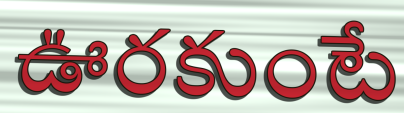
ఊరకుంటే